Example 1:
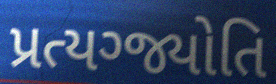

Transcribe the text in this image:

પ્રત્યગ્જ્યોતિ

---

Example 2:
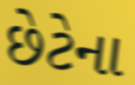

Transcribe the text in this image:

છેટેના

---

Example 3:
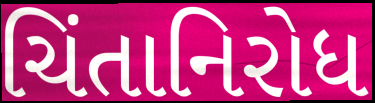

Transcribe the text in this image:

ચિંતાનિરોધ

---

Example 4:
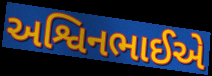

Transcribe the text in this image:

અશ્વિનભાઈએ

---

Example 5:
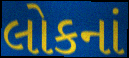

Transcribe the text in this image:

લોકનાં